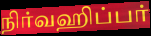
நிர்வஹிப்பர்